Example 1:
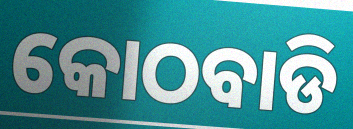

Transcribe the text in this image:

କୋଠବାଡି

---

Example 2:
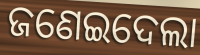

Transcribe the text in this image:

ଜଣେଇଦେଲା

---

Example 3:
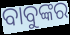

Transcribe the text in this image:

ବାବୁଙ୍କର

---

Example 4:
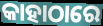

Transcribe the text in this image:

କାହାଠାରେ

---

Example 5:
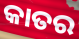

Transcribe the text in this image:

କାତର